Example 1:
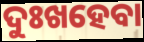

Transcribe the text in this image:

ଦୁଃଖହେବା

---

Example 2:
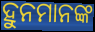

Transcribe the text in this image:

ହୁନମାନଙ୍କ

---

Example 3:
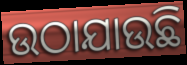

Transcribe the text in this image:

ଉଠାଯାଉଛି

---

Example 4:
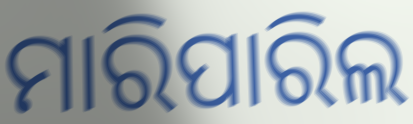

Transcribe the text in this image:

ମାରିପାରିଲ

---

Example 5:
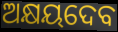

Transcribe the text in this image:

ଅକ୍ଷୟଦେବ